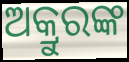
ଅକ୍ରୁରଙ୍କ